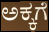
ಅಕ್ಕಗೆ